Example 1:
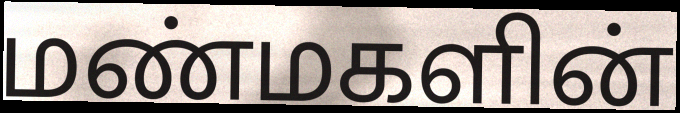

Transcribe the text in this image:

மண்மகளின்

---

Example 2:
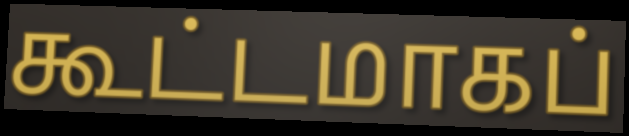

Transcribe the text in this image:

கூட்டமாகப்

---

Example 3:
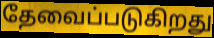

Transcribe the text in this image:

தேவைப்படுகிறது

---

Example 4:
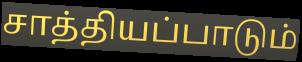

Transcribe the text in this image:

சாத்தியப்பாடும்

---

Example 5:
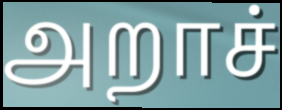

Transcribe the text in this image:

அறாச்